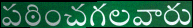
పఠించగలవారు